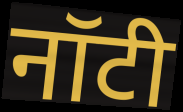
नॉटी